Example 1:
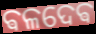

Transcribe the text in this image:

ଵଳଦେଵ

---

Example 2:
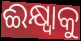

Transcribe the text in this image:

ଈକ୍ଷ୍ୱାକୁ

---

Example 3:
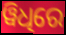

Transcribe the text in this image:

ୱିଧିରେ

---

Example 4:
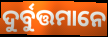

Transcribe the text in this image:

ଦୁର୍ବୁତ୍ତମାନେ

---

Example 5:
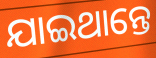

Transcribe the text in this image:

ଯାଇଥାନ୍ତେ